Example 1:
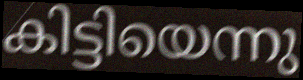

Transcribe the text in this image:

കിട്ടിയെന്നു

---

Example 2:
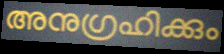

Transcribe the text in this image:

അനുഗ്രഹിക്കും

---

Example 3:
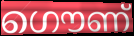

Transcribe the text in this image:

ഗൌണ്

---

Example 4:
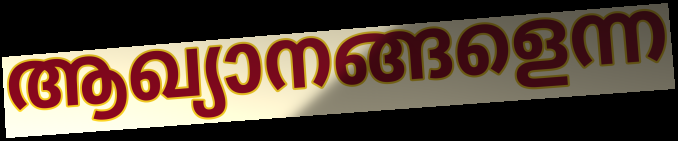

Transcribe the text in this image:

ആഖ്യാനങ്ങളെന്ന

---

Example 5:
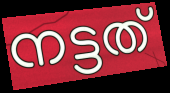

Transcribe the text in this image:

നട്ടത്